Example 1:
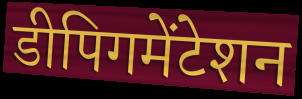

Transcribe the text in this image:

डीपिगमेंटेशन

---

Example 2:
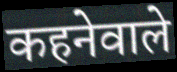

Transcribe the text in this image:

कहनेवाले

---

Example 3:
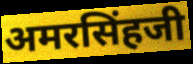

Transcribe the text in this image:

अमरसिंहजी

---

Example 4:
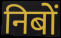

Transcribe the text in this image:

निबों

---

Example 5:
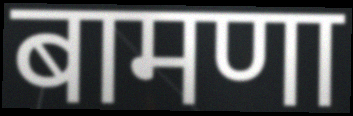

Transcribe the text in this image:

बामणा